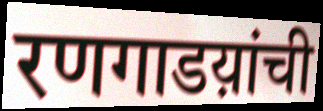
रणगाडय़ांची